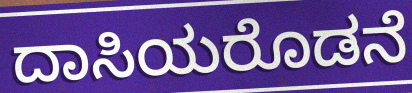
ದಾಸಿಯರೊಡನೆ